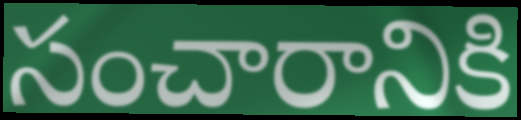
సంచారానికి